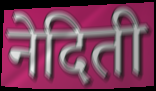
नेदिती